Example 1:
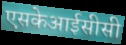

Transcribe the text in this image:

एसकेआईसीसी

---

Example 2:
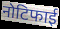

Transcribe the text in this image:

नोटिफाई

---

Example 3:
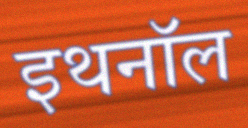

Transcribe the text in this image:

इथनॉल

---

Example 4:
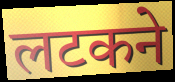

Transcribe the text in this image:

लटकने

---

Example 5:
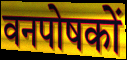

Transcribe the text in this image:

वनपोषकों